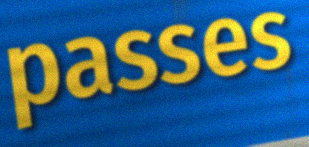
passes